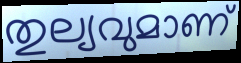
തുല്യവുമാണ്